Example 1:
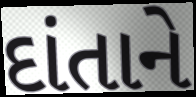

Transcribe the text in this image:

દાંતાને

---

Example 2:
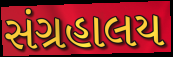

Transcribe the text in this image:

સંગ્રહાલય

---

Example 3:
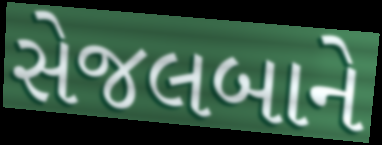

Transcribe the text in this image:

સેજલબાને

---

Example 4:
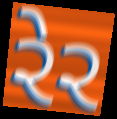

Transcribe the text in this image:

રેર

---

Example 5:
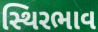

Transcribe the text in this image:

સ્થિરભાવ